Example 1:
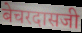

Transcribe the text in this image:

बेचरदासजी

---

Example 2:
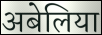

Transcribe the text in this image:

अबेलिया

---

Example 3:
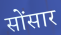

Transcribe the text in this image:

सोंसार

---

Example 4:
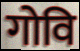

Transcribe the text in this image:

गोवि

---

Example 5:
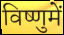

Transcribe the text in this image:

विष्णुमें